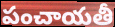
పంచాయతీ